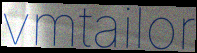
vmtailor